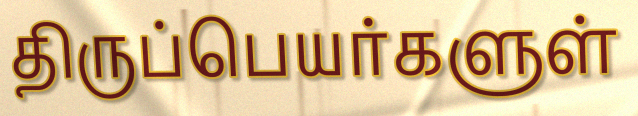
திருப்பெயர்களுள்